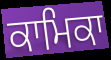
ਕਾਮਿਕਾ